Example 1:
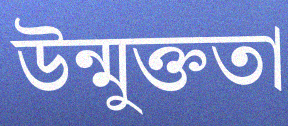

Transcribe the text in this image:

উন্মুক্ততা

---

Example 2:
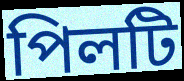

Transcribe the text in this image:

পিলটি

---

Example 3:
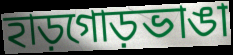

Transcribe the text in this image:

হাড়গোড়ভাঙা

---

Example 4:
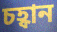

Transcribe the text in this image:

চহ্বান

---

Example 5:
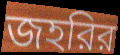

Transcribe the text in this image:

জহরির